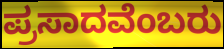
ಪ್ರಸಾದವೆಂಬರು